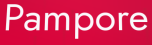
Pampore